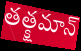
తత్క్షమాన్